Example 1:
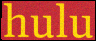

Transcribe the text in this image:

hulu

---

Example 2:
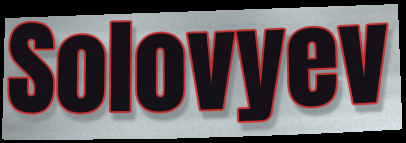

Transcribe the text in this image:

Solovyev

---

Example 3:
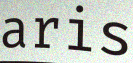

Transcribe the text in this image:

aris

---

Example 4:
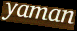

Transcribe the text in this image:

yaman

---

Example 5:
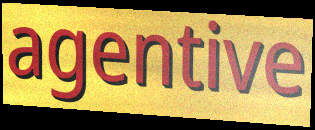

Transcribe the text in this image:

agentive